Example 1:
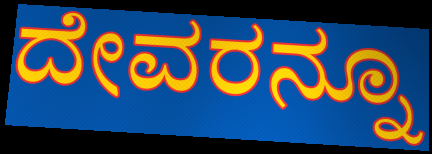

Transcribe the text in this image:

ದೇವರನ್ನೂ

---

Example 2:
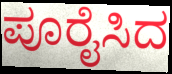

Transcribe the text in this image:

ಪೂರೈಸಿದ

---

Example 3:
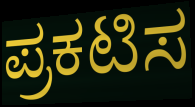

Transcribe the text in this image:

ಪ್ರಕಟಿಸ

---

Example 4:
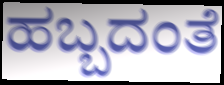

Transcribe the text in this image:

ಹಬ್ಬದಂತೆ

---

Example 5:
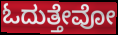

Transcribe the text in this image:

ಓದುತ್ತೇವೋ